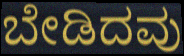
ಬೇಡಿದವು